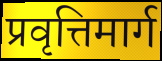
प्रवृत्तिमार्ग